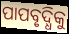
ପାପବୃଦ୍ଧିକୁ